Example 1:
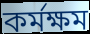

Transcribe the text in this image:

কৰ্মক্ষম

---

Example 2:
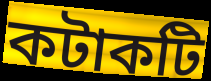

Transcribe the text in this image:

কটাকটি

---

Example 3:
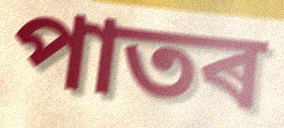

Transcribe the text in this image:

পাতৰ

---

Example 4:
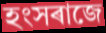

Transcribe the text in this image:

হংসৰাজে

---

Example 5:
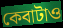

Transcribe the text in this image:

কেবাটাও